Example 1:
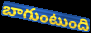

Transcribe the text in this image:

బాగుంటుంది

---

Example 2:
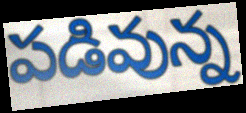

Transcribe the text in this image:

పడివున్న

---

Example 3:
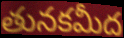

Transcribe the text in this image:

తునకమీద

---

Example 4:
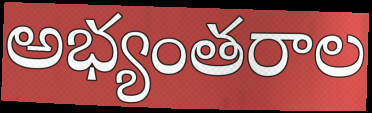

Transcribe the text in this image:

అభ్యంతరాల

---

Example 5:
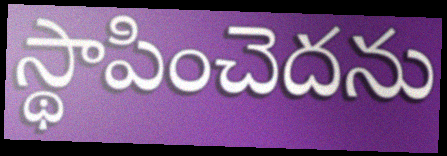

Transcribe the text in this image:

స్థాపించెదను